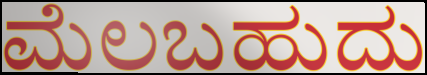
ಮೆಲಬಹುದು